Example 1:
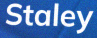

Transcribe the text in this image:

Staley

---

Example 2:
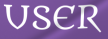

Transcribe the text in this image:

USER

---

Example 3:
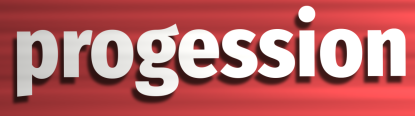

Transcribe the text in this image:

progession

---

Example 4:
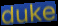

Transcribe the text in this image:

duke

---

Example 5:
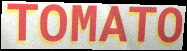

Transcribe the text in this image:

TOMATO